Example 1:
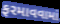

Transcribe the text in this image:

ફરમાવવામાં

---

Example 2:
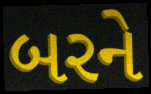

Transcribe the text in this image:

બરને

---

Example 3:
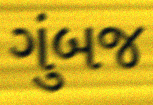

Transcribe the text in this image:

ગુંબજ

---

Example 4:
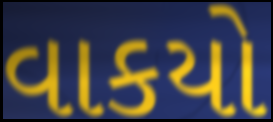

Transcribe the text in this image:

વાકયો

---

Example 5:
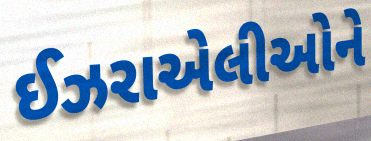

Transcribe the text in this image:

ઈઝરાએલીઓને